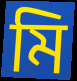
মি